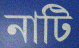
নাটি